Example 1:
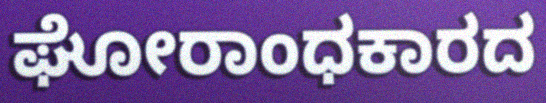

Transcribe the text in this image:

ಘೋರಾಂಧಕಾರದ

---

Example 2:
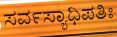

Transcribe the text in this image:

ಸರ್ವಸ್ಯಾಧಿಪತಿಃ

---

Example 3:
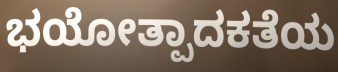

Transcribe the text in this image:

ಭಯೋತ್ಪಾದಕತೆಯ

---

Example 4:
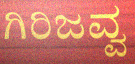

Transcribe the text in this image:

ಗಿರಿಜವ್ವ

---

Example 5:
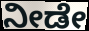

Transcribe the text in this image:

ನೀಡೇ